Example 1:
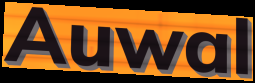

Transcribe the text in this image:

Auwal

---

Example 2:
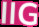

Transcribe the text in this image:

IIG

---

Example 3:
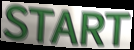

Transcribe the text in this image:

START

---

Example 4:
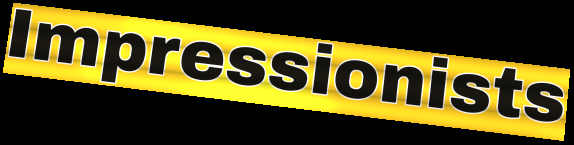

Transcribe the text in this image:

Impressionists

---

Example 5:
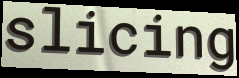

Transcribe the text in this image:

slicing